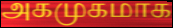
அகமுகமாக